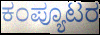
ಕಂಪ್ಯೂಟರ